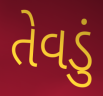
તેવડું